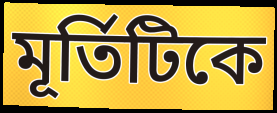
মূর্তিটিকে